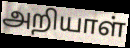
அறியாள்